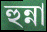
হুন্না